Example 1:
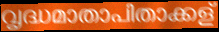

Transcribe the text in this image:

വൃദ്ധമാതാപിതാക്കള്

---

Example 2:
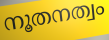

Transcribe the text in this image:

നൂതനത്വം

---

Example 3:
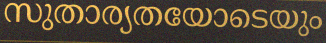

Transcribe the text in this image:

സുതാര്യതയോടെയും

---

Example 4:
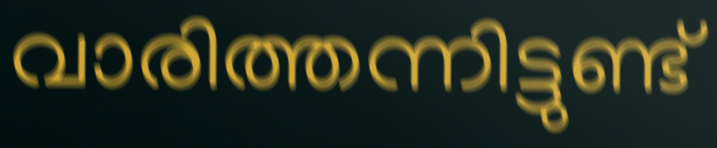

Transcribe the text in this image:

വാരിത്തന്നിട്ടുണ്ട്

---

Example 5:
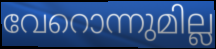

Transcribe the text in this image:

വേറൊന്നുമില്ല